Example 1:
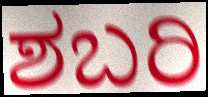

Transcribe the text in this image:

ಶಬರಿ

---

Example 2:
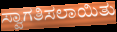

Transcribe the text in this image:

ಸ್ವಾಗತಿಸಲಾಯಿತು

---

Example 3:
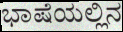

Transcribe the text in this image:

ಭಾಷೆಯಲ್ಲಿನ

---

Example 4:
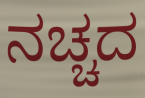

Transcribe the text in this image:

ನಚ್ಚದ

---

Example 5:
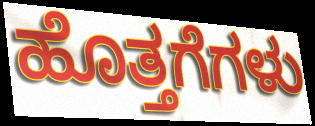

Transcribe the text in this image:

ಹೊತ್ತಗೆಗಳು